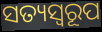
ସତ୍ୟସ୍ୱରୂପ